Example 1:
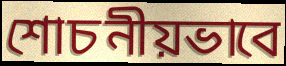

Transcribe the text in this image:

শোচনীয়ভাবে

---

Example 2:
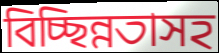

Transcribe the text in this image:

বিচ্ছিন্নতাসহ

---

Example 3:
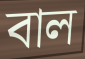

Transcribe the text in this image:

বাল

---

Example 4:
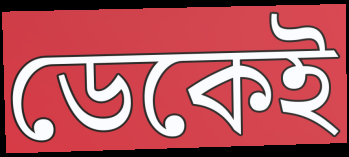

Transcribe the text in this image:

ডেকেই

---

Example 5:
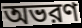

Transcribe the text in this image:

অভরণ